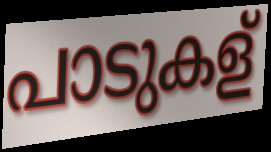
പാടുകള്